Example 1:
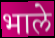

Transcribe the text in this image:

भाले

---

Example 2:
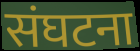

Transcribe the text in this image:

संघटना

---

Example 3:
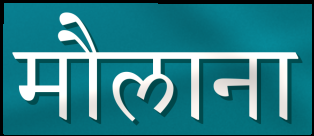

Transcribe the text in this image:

मौलाना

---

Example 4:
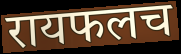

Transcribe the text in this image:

रायफलच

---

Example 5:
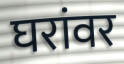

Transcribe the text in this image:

घरांवर